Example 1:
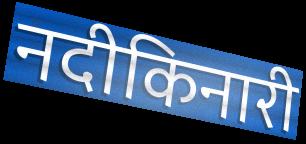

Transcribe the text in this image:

नदीकिनारी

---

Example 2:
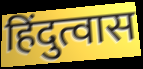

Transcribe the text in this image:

हिंदुत्वास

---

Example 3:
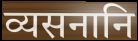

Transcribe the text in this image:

व्यसनानि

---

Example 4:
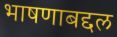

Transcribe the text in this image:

भाषणाबद्दल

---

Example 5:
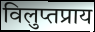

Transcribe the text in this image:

विलुप्तप्राय